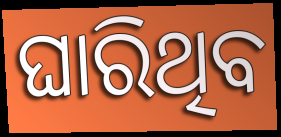
ଘାରିଥିବ